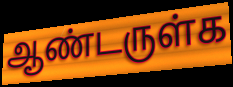
ஆண்டருள்க